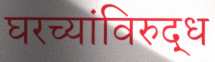
घरच्यांविरुद्ध